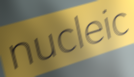
nucleic